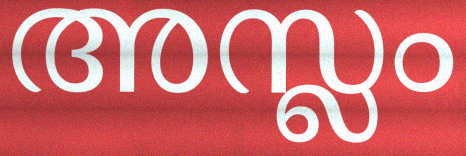
അസ്ലം